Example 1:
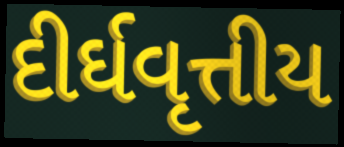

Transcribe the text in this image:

દીર્ઘવૃત્તીય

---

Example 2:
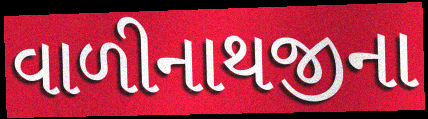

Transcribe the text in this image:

વાળીનાથજીના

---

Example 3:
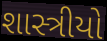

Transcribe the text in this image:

શાસ્ત્રીયો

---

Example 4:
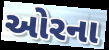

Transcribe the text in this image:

ઓરના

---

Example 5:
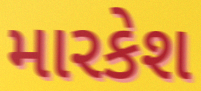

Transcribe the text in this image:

મારકેશ